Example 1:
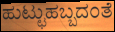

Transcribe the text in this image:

ಹುಟ್ಟುಹಬ್ಬದಂತೆ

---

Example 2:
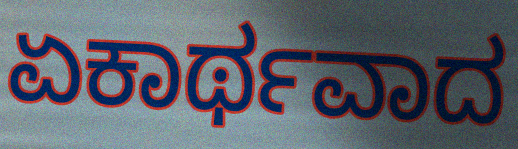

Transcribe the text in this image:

ಏಕಾರ್ಥವಾದ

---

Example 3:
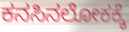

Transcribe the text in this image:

ಕನಸಿನಲೋಕಕ್ಕೆ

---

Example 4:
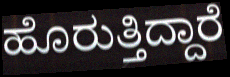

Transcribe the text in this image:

ಹೊರುತ್ತಿದ್ದಾರೆ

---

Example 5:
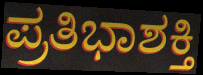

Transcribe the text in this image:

ಪ್ರತಿಭಾಶಕ್ತಿ